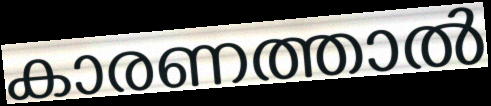
കാരണത്താൽ